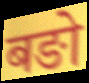
बङो